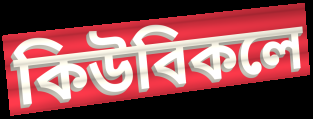
কিউবিকলে